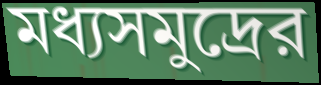
মধ্যসমুদ্রের